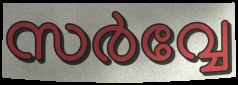
സർവ്വേ